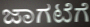
ಜಾಗಟೆಗೆ